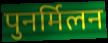
पुनर्मिलन